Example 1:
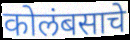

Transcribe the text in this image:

कोलंबसाचे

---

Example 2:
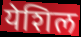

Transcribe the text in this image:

येशिल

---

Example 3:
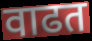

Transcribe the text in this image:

वाढत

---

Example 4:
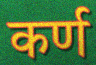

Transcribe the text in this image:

कर्ण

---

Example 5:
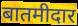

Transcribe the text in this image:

बातमीदार